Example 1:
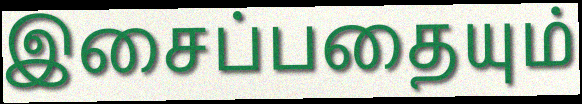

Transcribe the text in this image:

இசைப்பதையும்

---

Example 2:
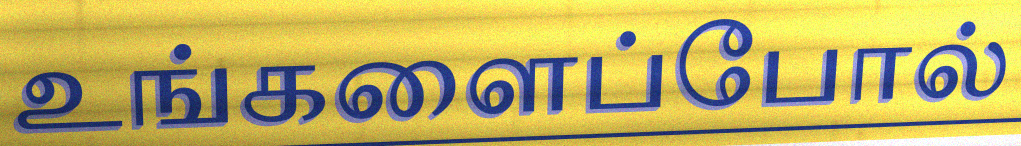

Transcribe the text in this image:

உங்களைப்போல்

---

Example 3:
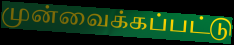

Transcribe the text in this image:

முன்வைக்கப்பட்டு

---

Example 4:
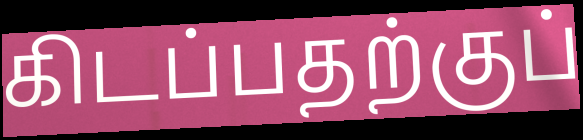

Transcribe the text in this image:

கிடப்பதற்குப்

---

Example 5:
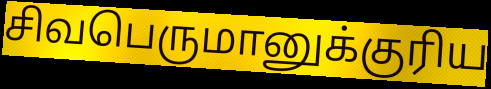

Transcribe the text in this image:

சிவபெருமானுக்குரிய